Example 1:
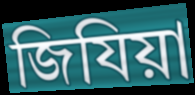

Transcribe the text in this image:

জিযিয়া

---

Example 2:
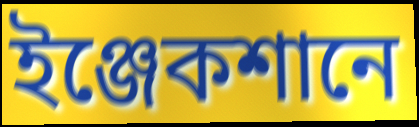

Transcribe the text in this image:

ইঞ্জেকশানে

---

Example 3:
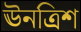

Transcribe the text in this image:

ঊনত্রিশ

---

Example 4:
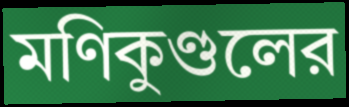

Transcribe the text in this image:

মণিকুণ্ডলের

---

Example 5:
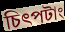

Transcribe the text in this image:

চিৎপটাং